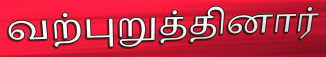
வற்புறுத்தினார்